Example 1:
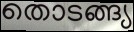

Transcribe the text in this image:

തൊടങ്ങ്യ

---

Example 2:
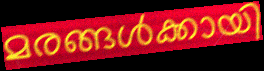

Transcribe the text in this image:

മരങ്ങൾക്കായി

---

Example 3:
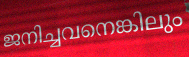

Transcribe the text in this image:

ജനിച്ചവനെങ്കിലും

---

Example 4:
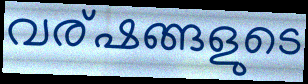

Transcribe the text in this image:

വര്ഷങ്ങളുടെ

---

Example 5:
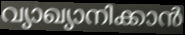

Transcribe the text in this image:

വ്യാഖ്യാനിക്കാൻ